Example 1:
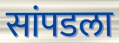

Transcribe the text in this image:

सांपडला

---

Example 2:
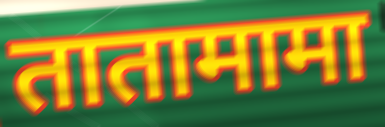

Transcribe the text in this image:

तातामामा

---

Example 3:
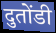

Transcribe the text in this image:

दुतोंडी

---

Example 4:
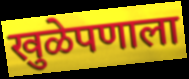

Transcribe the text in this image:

खुळेपणाला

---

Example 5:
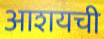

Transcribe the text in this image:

आशयची